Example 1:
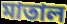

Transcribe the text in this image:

মাতাল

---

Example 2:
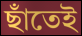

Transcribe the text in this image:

ছাঁতেই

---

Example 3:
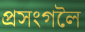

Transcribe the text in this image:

প্ৰসংগলৈ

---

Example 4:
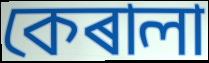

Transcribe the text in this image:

কেৰালা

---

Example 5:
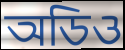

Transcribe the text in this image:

অডিও